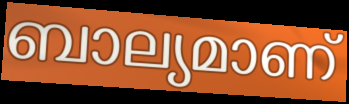
ബാല്യമാണ്